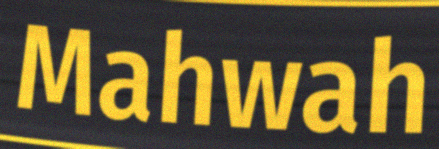
Mahwah